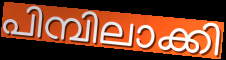
പിമ്പിലാക്കി